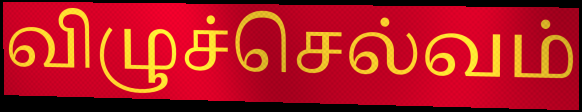
விழுச்செல்வம்